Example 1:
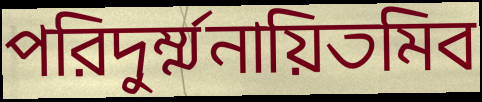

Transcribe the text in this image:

পরিদুর্ম্মনায়িতমিব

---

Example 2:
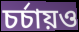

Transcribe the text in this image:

চর্চায়ও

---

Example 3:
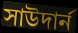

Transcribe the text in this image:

সাউদার্ন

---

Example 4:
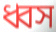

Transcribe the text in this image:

ধ্বস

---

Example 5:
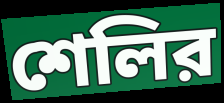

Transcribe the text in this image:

শেলির